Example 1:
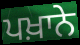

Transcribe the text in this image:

ਪਖ਼ਾਨੇ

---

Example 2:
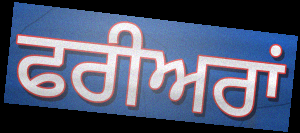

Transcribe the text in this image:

ਫਰੀਅਰਾਂ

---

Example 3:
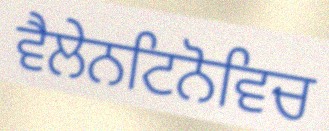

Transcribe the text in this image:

ਵੈਲੇਨਟਿਨੋਵਿਚ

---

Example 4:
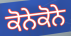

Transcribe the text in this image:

ਕੋਨੇਕੋਨੇ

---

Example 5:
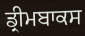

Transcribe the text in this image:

ਡ੍ਰੀਮਬਾਕਸ